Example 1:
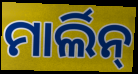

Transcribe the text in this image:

ମାର୍ଲିନ୍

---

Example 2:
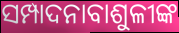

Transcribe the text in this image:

ସମ୍ପାଦନାବାଶୁଳୀଙ୍କ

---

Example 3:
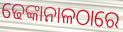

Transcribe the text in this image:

ଢେଙ୍କାନାଳଠାରେ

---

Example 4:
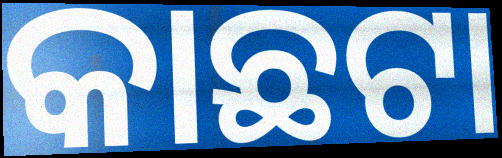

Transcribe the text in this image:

କାଛଟା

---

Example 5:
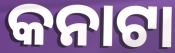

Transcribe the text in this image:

କନାଟା